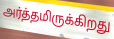
அர்த்தமிருக்கிறது